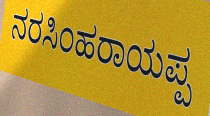
ನರಸಿಂಹರಾಯಪ್ಪ